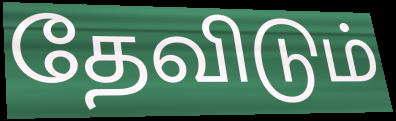
தேவிடும்